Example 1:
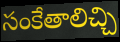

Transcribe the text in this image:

సంకేతాలిచ్చి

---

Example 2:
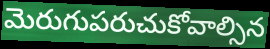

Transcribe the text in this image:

మెరుగుపరుచుకోవాల్సిన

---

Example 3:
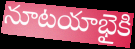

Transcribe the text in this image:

నూటయాభైకి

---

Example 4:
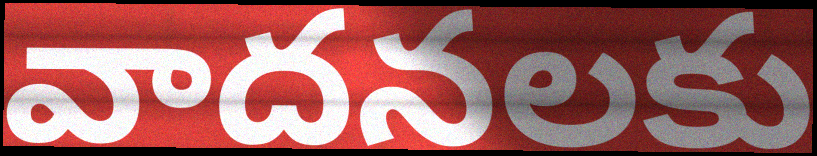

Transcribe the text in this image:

వాదనలకు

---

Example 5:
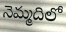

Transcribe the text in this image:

నెమ్మదిలో